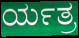
ರ್ಯತ್ರ